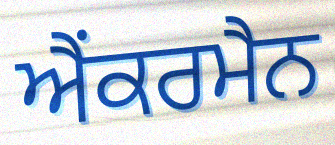
ਐਂਕਰਮੈਨ